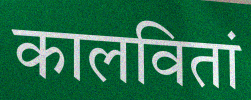
कालवितां